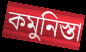
কমুনিস্তা